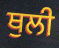
ਥੁਲੀ